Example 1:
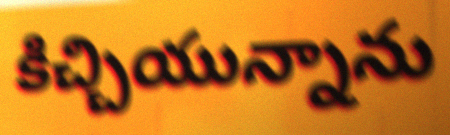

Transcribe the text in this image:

కిచ్చియున్నాను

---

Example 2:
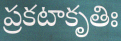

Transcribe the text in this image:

ప్రకటాకృతిః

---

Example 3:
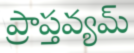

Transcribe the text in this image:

ప్రాప్తవ్యమ్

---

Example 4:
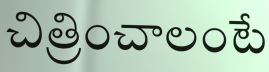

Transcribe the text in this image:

చిత్రించాలంటే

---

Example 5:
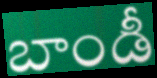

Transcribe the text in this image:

బాండీ